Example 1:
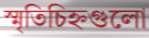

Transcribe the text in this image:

স্মৃতিচিহ্নগুলো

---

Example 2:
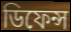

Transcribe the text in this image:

ডিফেন্স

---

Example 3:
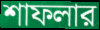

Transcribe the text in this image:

শাফলার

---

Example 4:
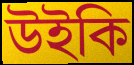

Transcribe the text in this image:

উইকি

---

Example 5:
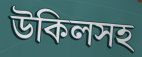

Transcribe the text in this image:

উকিলসহ